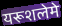
यरूशलेमे